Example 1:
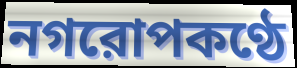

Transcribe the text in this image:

নগরোপকণ্ঠে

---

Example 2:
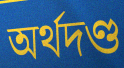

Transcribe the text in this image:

অর্থদণ্ড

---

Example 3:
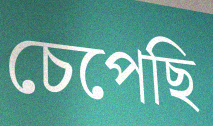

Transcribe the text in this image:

চেপেছি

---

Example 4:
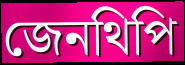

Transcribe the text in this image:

জেনথিপি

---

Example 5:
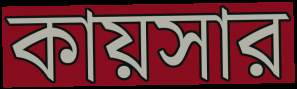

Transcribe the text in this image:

কায়সার